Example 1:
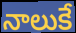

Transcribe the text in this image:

నాలుకే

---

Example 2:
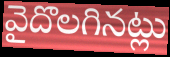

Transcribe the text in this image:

వైదొలగినట్లు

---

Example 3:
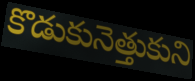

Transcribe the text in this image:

కొడుకునెత్తుకుని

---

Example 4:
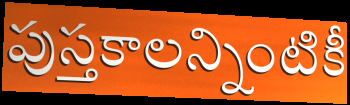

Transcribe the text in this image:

పుస్తకాలన్నింటికీ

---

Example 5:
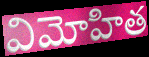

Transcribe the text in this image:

విమోహిత